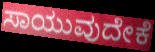
ಸಾಯುವುದೇಕೆ